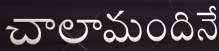
చాలామందినే